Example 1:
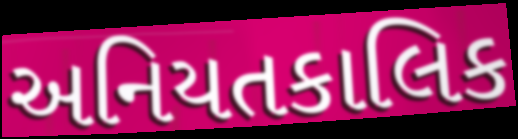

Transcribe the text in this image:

અનિયતકાલિક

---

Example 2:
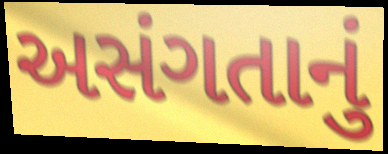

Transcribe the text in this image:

અસંગતાનું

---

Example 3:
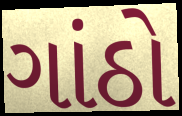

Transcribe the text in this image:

ગાંઠો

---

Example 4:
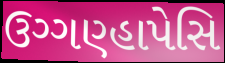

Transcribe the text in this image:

ઉગ્ગણ્હાપેસિ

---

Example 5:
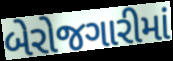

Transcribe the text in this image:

બેરોજગારીમાં